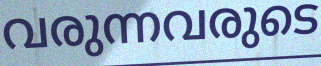
വരുന്നവരുടെ